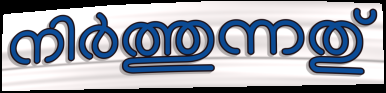
നിർത്തുന്നതു്